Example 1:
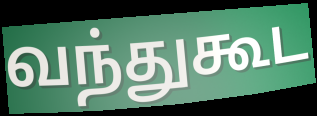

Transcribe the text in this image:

வந்துகூட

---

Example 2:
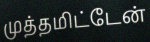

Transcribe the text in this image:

முத்தமிட்டேன்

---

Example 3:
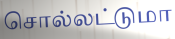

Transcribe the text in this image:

சொல்லட்டுமா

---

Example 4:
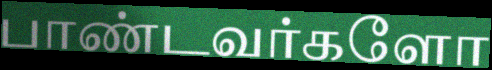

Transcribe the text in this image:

பாண்டவர்களோ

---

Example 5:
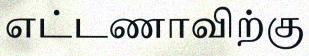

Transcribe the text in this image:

எட்டணாவிற்கு